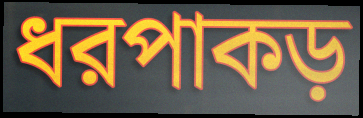
ধরপাকড়